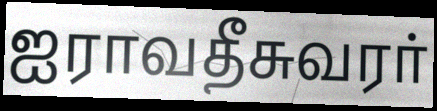
ஐராவதீசுவரர்